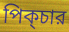
পিক্চার